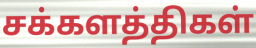
சக்களத்திகள்